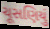
ચૂસણિયું